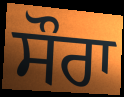
ਸੌਰਾ